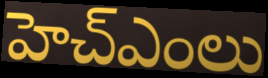
హెచ్ఎంలు